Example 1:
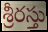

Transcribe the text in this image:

శ్రీరస్తు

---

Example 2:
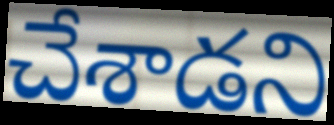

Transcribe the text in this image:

చేశాడని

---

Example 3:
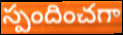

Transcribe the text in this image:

స్పందించగా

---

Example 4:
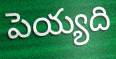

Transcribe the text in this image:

పెయ్యది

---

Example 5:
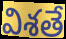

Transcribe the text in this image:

విశతే